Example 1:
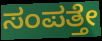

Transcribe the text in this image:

ಸಂಪತ್ತೇ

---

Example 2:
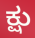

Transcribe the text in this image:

ಕ್ಷು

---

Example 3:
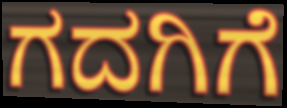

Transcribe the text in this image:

ಗದಗಿಗೆ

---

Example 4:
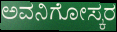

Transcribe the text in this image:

ಅವನಿಗೋಸ್ಕರ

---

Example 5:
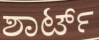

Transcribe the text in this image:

ಶಾರ್ಟ್